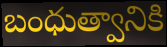
బంధుత్వానికి